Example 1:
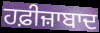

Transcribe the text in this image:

ਹਫ਼ੀਜ਼ਾਬਾਦ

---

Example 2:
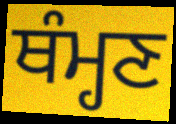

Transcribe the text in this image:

ਥੰਮ੍ਹਣ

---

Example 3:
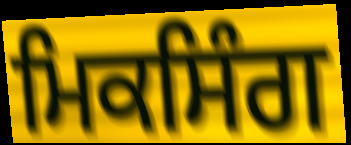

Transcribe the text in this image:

ਮਿਕਸਿੰਗ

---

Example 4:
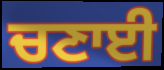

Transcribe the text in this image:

ਚਣਾਈ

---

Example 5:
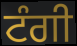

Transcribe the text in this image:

ਟੰਗੀ